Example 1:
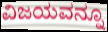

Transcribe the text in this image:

ವಿಜಯವನ್ನೂ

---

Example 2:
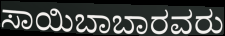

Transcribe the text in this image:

ಸಾಯಿಬಾಬಾರವರು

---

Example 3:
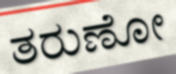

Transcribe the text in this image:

ತರುಣೋ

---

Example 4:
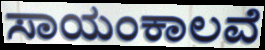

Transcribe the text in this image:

ಸಾಯಂಕಾಲವೆ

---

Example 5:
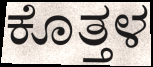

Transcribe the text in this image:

ಕೊತ್ತಳ